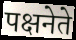
पक्षनेते